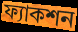
ফ্যাকশন